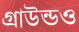
গ্রাউন্ডও